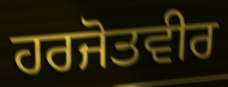
ਹਰਜੋਤਵੀਰ